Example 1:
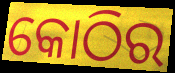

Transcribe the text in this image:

କୋଠିର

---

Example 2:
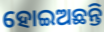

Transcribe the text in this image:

ହୋଇଅଛନ୍ତି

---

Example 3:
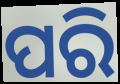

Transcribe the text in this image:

ପରି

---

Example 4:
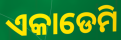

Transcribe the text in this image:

ଏକାଡେମି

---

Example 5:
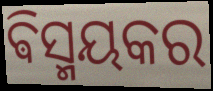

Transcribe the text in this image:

ଵିସ୍ମୟକର